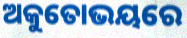
ଅକୁତୋଭୟରେ